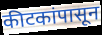
कीटकांपासून